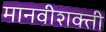
मानवीशक्ती